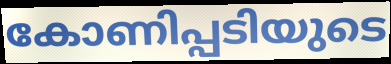
കോണിപ്പടിയുടെ